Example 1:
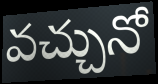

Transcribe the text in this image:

వచ్చునో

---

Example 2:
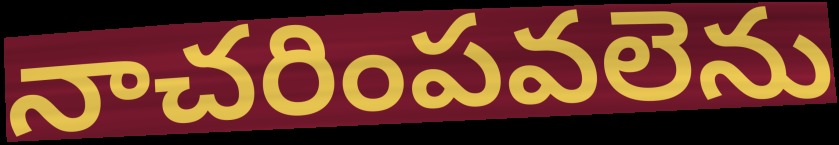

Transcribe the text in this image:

నాచరింపవలెను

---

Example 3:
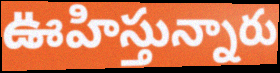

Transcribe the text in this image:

ఊహిస్తున్నారు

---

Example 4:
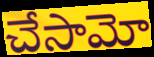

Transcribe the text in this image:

చేసామో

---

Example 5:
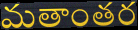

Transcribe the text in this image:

మతాంతర